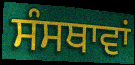
ਸੰਸਥਾਵਾਂ